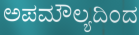
ಅಪಮೌಲ್ಯದಿಂದ